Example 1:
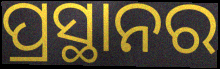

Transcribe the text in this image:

ପ୍ରସ୍ଥାନର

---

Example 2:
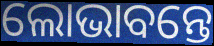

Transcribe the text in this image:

ଲୋଭାବନ୍ତେ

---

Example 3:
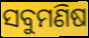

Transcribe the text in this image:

ସବୁମଣିଷ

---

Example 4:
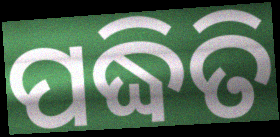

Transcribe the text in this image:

ପଦ୍ଧିତି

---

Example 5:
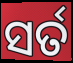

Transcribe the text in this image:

ସର୍ତ